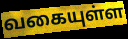
வகையுள்ள